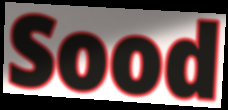
Sood